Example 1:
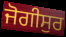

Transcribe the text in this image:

ਜੋਗੀਸੁਰ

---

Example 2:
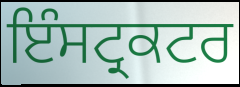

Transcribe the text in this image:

ਇੰਸਟ੍ਰਕਟਰ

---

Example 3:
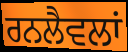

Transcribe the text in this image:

ਰਨਲੈਵਲਾਂ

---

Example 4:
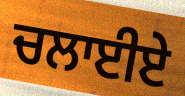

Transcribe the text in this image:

ਚਲਾਈਏ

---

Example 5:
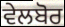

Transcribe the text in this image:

ਵੇਲਬੋਰ